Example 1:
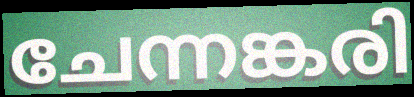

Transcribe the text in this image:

ചേന്നങ്കരി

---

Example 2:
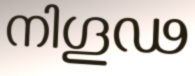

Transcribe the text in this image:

നിഗൂഢ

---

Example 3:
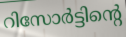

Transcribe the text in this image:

റിസോർട്ടിന്റെ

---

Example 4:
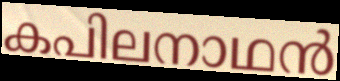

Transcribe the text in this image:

കപിലനാഥൻ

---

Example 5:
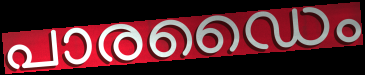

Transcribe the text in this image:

പാരഡൈം